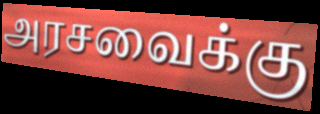
அரசவைக்கு